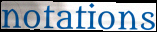
notations